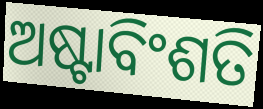
ଅଷ୍ଟାବିଂଶତି